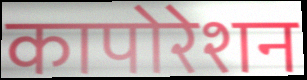
कापोरेशन